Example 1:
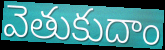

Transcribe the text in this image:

వెతుకుదాం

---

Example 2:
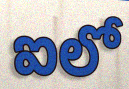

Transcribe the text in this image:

ఐలో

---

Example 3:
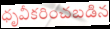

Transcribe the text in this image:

ధృవీకరించబడిన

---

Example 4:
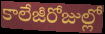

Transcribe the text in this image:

కాలేజీరోజుల్లో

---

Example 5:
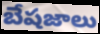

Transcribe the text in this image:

బేషజాలు